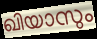
ഖിയാസും